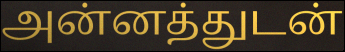
அன்னத்துடன்